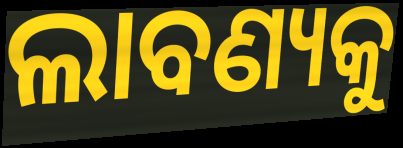
ଲାବଣ୍ୟକୁ